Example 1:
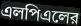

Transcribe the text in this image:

এলপিএলের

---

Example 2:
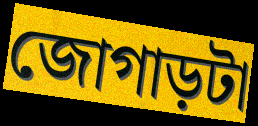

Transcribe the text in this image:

জোগাড়টা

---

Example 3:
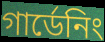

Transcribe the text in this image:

গার্ডেনিং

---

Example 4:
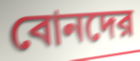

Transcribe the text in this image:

বোনদের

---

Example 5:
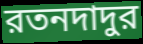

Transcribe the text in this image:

রতনদাদুর